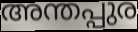
അന്തപ്പുര